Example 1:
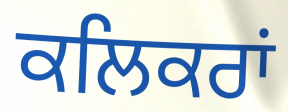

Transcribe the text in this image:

ਕਲਿਕਰਾਂ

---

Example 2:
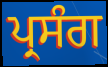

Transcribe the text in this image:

ਪ੍ਰਸੰਗ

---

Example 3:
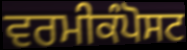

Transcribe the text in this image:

ਵਰਮੀਕੰਪੋਸਟ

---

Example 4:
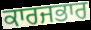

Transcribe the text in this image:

ਕਾਰਜਭਾਰ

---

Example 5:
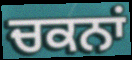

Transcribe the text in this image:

ਚਕਨਾਂ